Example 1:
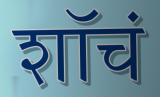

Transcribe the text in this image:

शॉचं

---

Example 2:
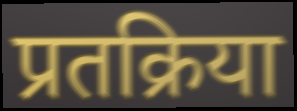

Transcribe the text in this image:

प्रतक्रिया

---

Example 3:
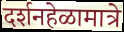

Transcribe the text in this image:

दर्शनहेळामात्रे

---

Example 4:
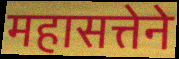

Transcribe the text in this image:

महासत्तेने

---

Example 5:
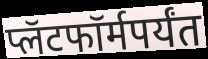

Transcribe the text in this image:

प्लॅटफॉर्मपर्यंत